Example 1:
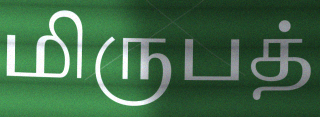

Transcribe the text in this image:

மிருபத்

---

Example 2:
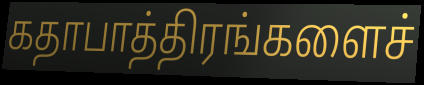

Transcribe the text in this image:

கதாபாத்திரங்களைச்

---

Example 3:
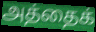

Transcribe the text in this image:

அத்தைக்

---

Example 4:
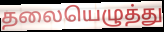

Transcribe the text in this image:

தலையெழுத்து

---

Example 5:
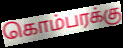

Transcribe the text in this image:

கொம்பரக்கு